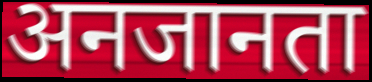
अनजानता